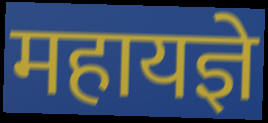
महायज्ञे